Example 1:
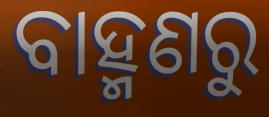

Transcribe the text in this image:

ବାହ୍ମଣରୁ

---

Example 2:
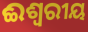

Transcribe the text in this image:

ଈଶ୍ବରୀୟ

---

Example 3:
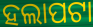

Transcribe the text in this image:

ହଲାପଟା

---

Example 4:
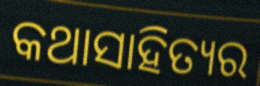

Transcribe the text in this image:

କଥାସାହିତ୍ୟର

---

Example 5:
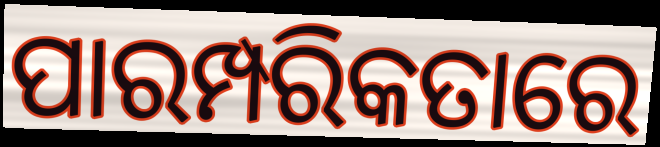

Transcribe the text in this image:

ପାରମ୍ପରିକତାରେ